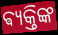
ଵ୍ୟକ୍ତିଙ୍କ